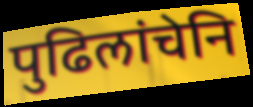
पुढिलांचेनि